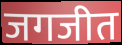
जगजीत